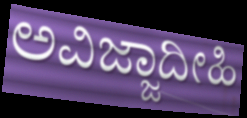
ಅವಿಜ್ಜಾದೀಹಿ